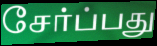
சேர்ப்பது